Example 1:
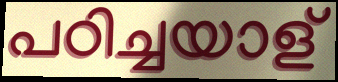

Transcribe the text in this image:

പഠിച്ചയാള്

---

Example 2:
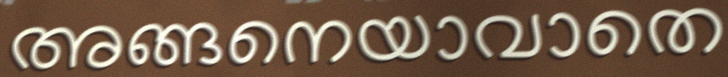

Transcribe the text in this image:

അങ്ങനെയാവാതെ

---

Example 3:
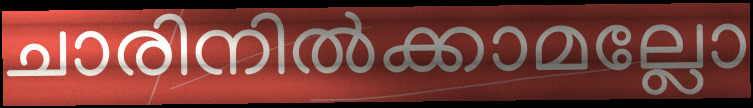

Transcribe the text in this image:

ചാരിനിൽക്കാമല്ലോ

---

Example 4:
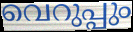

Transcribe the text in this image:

വെറുപ്പും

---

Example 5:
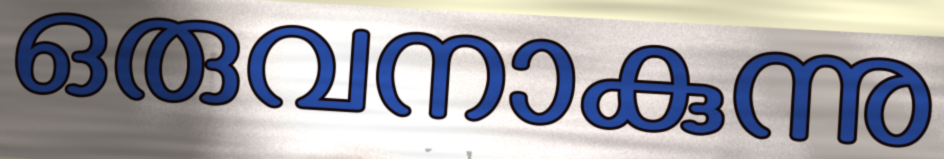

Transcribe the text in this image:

ഒരുവനാകുന്നു